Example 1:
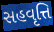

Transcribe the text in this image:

સહવૃત્તિ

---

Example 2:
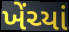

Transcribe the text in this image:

ખેંચ્યાં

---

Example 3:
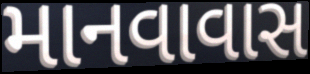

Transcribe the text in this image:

માનવાવાસ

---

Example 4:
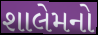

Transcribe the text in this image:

શાલેમનો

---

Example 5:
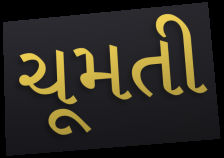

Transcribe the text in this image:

ચૂમતી